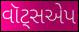
વૉટ્સએપ